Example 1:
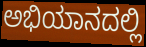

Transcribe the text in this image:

ಅಭಿಯಾನದಲ್ಲಿ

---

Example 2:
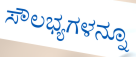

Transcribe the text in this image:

ಸೌಲಭ್ಯಗಳನ್ನೂ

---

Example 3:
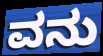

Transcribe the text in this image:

ವನು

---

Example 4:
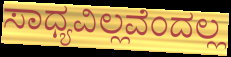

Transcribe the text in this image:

ಸಾಧ್ಯವಿಲ್ಲವೆಂದಲ್ಲ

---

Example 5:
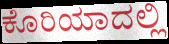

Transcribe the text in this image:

ಕೊರಿಯಾದಲ್ಲಿ